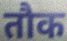
तौक